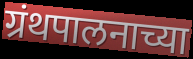
ग्रंथपालनाच्या